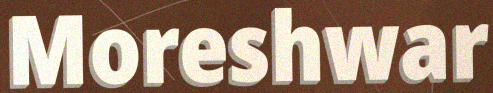
Moreshwar